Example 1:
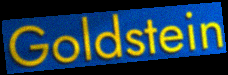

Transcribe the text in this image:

Goldstein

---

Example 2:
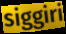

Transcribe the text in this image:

siggiri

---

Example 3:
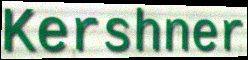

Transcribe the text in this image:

Kershner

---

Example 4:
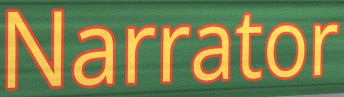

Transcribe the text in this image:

Narrator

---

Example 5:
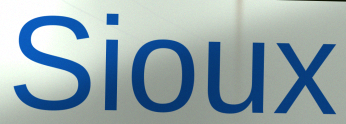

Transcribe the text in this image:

Sioux